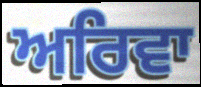
ਅਰਿਵਾ